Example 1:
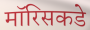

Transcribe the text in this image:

मॉरिसकडे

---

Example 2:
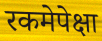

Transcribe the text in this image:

रकमेपेक्षा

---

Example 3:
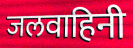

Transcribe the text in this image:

जलवाहिनी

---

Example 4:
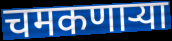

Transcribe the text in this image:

चमकणाऱ्या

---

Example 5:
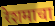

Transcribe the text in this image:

रेशमाचा